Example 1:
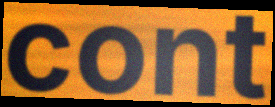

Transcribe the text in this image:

cont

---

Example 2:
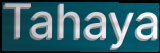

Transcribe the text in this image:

Tahaya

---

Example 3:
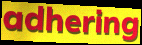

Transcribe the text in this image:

adhering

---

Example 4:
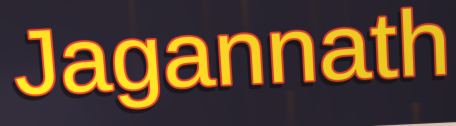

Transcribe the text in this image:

Jagannath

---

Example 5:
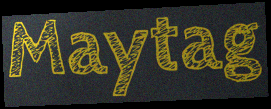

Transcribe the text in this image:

Maytag